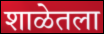
शाळेतला